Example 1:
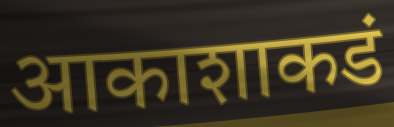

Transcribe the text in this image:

आकाशाकडं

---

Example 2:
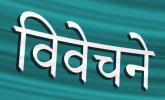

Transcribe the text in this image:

विवेचने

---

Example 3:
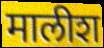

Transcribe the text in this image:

मालीश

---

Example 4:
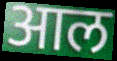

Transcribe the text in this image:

आल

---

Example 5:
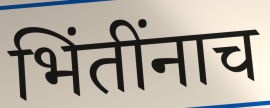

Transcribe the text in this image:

भिंतींनाच